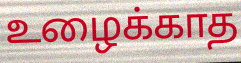
உழைக்காத